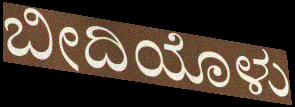
ಬೀದಿಯೊಳು